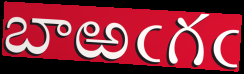
బాఱఁగఁ